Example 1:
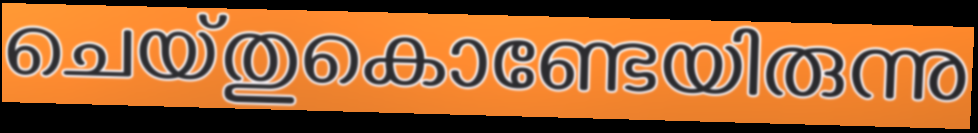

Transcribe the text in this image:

ചെയ്തുകൊണ്ടേയിരുന്നു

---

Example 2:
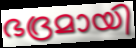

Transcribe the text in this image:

ഭദ്രമായി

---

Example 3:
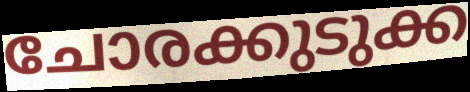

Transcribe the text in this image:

ചോരക്കുടുക്ക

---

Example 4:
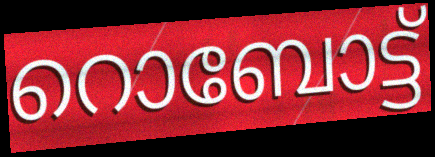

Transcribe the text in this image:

റൊബോട്ട്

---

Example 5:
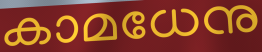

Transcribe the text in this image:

കാമധേനു